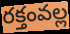
రక్తంవల్ల